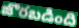
జొరబడింది